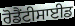
ਰੋਡੈਂਟੀਸਾਈਡ